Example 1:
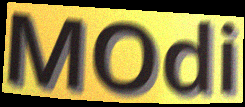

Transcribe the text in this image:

MOdi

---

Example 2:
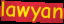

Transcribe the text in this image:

lawyan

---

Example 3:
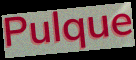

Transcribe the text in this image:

Pulque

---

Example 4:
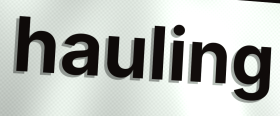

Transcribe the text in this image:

hauling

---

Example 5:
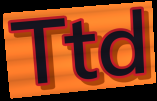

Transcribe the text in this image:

Ttd